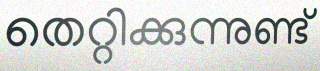
തെറ്റിക്കുന്നുണ്ട്